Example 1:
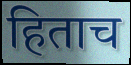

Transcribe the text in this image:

हिताच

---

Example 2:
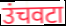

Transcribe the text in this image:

उंचवटा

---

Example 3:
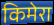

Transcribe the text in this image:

किमेरा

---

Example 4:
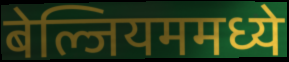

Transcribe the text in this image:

बेल्जियममध्ये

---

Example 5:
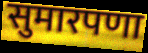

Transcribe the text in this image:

सुमारपणा